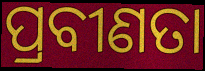
ପ୍ରବୀଣତା